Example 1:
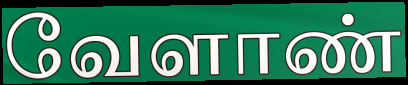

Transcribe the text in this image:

வேளாண்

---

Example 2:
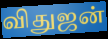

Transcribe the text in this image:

விதுஜன்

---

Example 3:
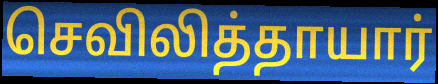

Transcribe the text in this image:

செவிலித்தாயார்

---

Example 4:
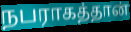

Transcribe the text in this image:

நபராகத்தான்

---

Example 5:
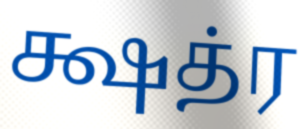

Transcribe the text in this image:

க்ஷத்ர